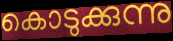
കൊടുക്കുന്നു